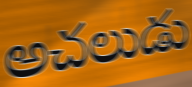
అచలుడు